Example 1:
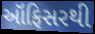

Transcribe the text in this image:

ઑફિસરથી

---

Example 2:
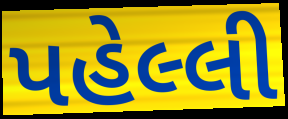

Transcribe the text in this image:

પહેલ્લી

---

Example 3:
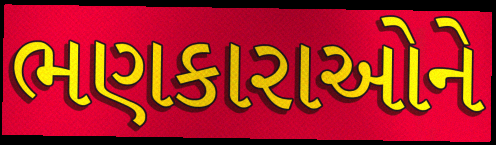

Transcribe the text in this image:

ભણકારાઓને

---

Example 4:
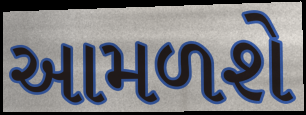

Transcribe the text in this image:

આમળશે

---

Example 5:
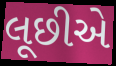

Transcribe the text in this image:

લૂછીએ